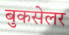
बुकसेलर